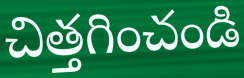
చిత్తగించండి